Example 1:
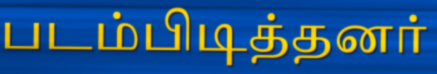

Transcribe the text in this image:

படம்பிடித்தனர்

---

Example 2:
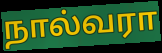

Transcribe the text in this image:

நால்வரா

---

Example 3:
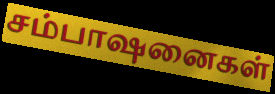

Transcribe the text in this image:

சம்பாஷனைகள்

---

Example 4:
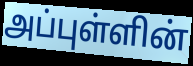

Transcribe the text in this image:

அப்புள்ளின்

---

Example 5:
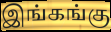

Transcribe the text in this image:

இங்கங்கு